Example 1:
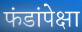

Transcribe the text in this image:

फंडांपेक्षा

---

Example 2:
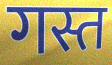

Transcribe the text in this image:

गस्त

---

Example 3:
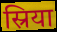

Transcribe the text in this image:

स्रिया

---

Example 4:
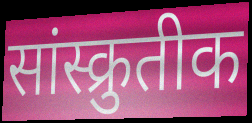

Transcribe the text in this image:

सांस्क्रुतीक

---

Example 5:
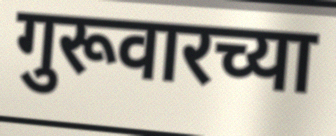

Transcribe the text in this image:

गुरूवारच्या